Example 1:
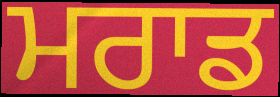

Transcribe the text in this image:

ਮਰਾਡ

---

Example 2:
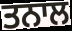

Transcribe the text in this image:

ਤਨਾਲ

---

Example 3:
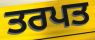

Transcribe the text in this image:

ਤਰਪਤ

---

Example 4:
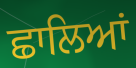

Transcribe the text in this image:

ਛਾਲਿਆਂ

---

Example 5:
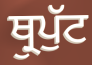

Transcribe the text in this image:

ਥ੍ਰੁਪੁੱਟ